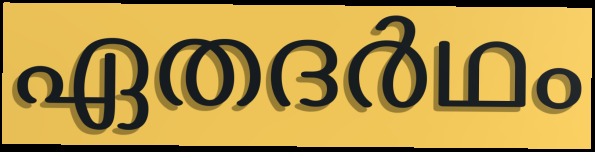
ഏതദർഥം